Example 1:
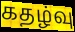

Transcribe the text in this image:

கதழ்வு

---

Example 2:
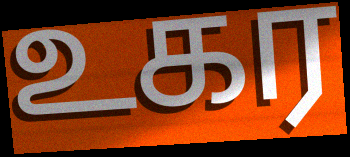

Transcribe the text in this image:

உகர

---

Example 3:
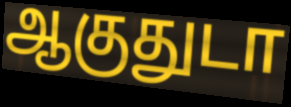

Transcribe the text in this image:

ஆகுதுடா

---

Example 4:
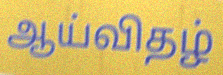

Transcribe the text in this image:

ஆய்விதழ்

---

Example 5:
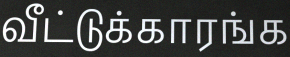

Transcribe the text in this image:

வீட்டுக்காரங்க